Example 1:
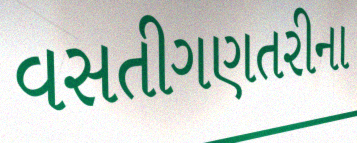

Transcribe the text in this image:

વસતીગણતરીના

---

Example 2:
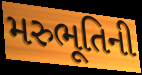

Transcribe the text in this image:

મરુભૂતિની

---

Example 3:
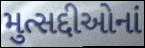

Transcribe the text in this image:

મુત્સદ્દીઓનાં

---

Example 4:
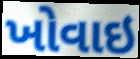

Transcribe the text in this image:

ખોવાઇ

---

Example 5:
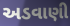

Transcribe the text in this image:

અડવાણી